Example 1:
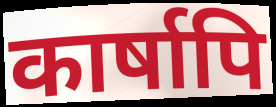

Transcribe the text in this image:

कार्षापि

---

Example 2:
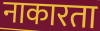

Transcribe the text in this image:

नाकारता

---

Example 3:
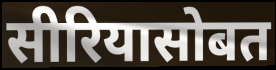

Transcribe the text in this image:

सीरियासोबत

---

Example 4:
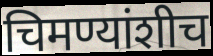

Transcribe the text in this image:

चिमण्यांशीच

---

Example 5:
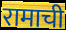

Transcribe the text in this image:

रामाची